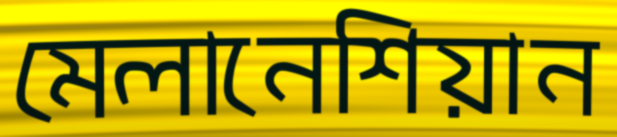
মেলানেশিয়ান